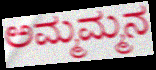
ಅಮ್ಮಮ್ಮನ